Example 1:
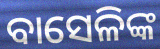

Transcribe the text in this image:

ବାସେଳିଙ୍କ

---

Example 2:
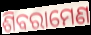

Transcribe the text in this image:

ଶିବରାମେଣ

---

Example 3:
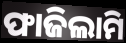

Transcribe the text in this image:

ଫାଜିଲାମି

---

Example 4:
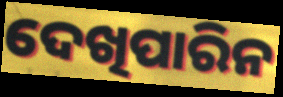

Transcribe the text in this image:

ଦେଖିପାରିନ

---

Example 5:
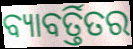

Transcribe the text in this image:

ବ୍ୟାବର୍ତ୍ତିତର